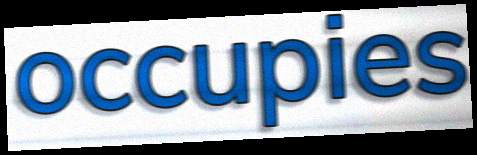
occupies